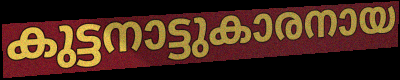
കുട്ടനാട്ടുകാരനായ